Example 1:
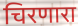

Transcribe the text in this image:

चिरणारा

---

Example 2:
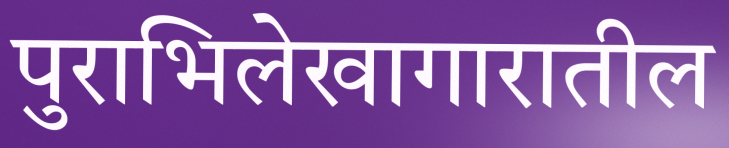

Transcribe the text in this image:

पुराभिलेखागारातील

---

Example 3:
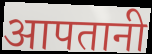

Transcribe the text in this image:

आपतानी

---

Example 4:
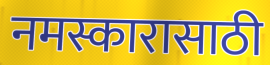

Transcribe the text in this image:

नमस्कारासाठी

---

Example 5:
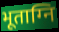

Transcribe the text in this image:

भूताग्नि